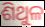
ଶିଥୁଳ